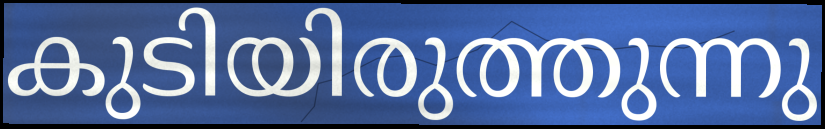
കുടിയിരുത്തുന്നു